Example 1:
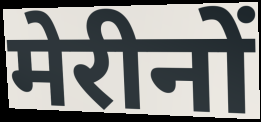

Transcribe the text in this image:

मेरीनों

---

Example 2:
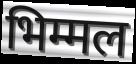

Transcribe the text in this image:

भिम्मल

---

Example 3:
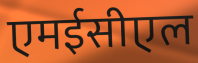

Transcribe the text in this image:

एमईसीएल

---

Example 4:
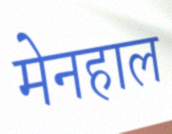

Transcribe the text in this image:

मेनहाल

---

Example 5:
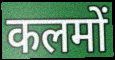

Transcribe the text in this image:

कलमों